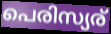
പെരിസ്യര്